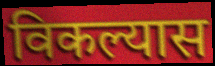
विकल्यास